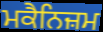
ਮਕੈਨਿਜ਼ਮ